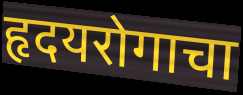
हृदयरोगाचा